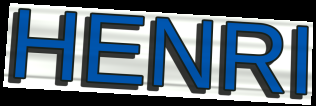
HENRI